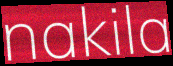
nakila